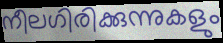
നീലഗിരിക്കുന്നുകളും